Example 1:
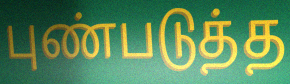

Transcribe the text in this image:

புண்படுத்த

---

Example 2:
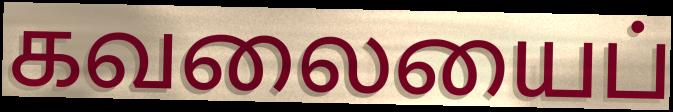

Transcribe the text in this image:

கவலையைப்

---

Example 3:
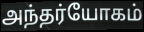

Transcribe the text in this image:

அந்தர்யோகம்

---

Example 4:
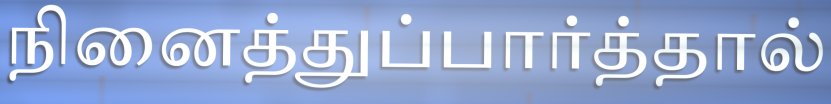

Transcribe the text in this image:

நினைத்துப்பார்த்தால்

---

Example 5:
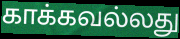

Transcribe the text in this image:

காக்கவல்லது